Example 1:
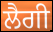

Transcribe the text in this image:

ਲੈਗੀ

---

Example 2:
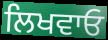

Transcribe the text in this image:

ਲਿਖਵਾਓ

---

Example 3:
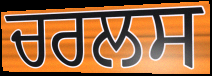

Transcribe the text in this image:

ਚਰਲਸ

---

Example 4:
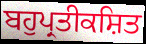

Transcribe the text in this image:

ਬਹੁਪ੍ਰਤੀਕਸ਼ਿਤ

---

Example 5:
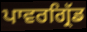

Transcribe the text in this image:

ਪਾਵਰਗ੍ਰਿੱਡ